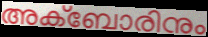
അക്ബോരിനും